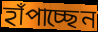
হাঁপাচ্ছেন